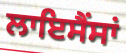
ਲਾਇਸੈਂਸਾਂ